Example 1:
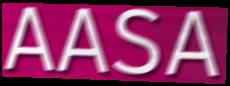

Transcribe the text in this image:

AASA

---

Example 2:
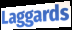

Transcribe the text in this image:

Laggards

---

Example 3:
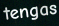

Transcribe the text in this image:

tengas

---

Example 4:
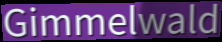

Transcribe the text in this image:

Gimmelwald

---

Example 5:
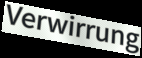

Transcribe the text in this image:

Verwirrung